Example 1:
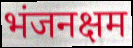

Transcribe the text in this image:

भंजनक्षम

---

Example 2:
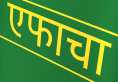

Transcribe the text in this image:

एफाचा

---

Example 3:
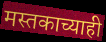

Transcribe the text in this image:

मस्तकाच्याही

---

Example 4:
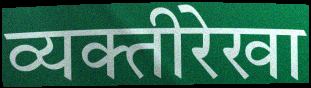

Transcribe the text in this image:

व्यक्तीरेखा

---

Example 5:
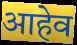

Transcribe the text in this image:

आहेव